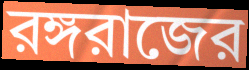
রঙ্গরাজের